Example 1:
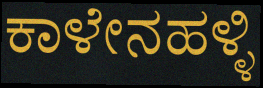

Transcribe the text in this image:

ಕಾಳೇನಹಳ್ಳಿ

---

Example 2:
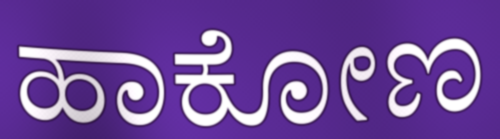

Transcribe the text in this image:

ಹಾಕೋಣ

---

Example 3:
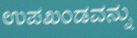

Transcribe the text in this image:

ಉಪಖಂಡವನ್ನು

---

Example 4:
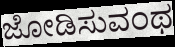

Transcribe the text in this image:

ಜೋಡಿಸುವಂಥ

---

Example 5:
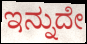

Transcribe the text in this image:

ಇನ್ನುದೇ